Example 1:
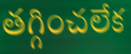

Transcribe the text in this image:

తగ్గించలేక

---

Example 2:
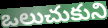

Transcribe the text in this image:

ఒలుచుకుని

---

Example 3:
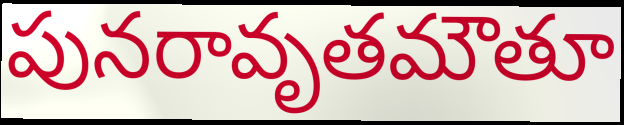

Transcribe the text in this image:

పునరావృతమౌతూ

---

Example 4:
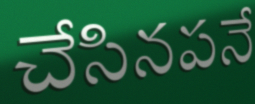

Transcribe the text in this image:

చేసినపనే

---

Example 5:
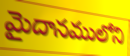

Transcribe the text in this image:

మైదానములోని